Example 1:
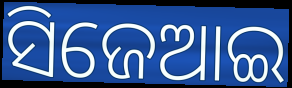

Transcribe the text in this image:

ସିଜେଆଇ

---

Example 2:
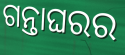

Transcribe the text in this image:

ଗନ୍ତାଘରର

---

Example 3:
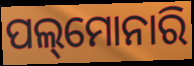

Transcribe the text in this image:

ପଲ୍‌ମୋନାରି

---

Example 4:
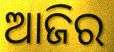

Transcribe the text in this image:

ଆଜିର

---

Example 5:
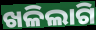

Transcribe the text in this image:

ଖଳିଲାଗି